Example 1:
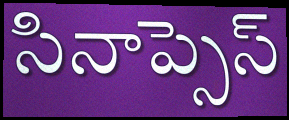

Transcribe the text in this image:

సినాప్సెస్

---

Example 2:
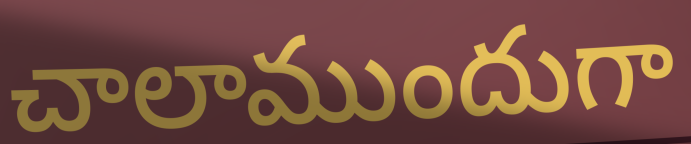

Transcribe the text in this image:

చాలాముందుగా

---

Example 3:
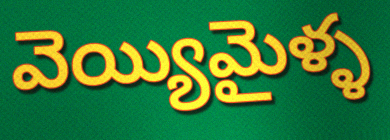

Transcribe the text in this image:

వెయ్యిమైళ్ళ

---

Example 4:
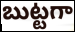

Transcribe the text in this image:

బుట్టగా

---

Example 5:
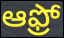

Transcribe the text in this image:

ఆఫ్రో